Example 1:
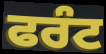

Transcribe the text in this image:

ਫਰੰਟ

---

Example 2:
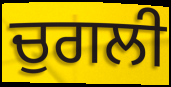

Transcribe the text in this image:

ਚੁਗਲੀ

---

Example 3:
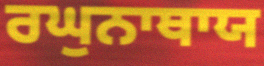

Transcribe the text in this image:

ਰਘੁਨਾਥਾਯ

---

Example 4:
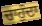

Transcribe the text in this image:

ਚਾਹੁੰਦਾ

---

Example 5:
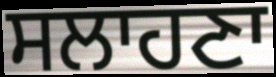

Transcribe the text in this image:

ਸਲਾਹਣਾ